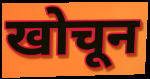
खोचून